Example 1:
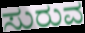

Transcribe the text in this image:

ಸುರುವ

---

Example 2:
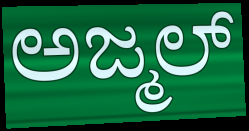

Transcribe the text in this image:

ಅಜ್ಮಲ್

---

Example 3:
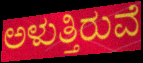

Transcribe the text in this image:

ಅಳುತ್ತಿರುವೆ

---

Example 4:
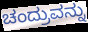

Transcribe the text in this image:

ಚಂದ್ರುವನ್ನು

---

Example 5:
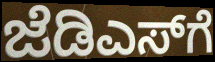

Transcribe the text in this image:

ಜೆಡಿಎಸ್‌ಗೆ